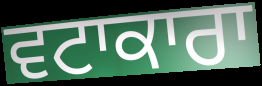
ਵਟਾਕਾਰਾ